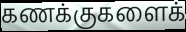
கணக்குகளைக்